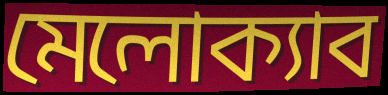
মেলোক্যাব